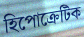
হিপোক্রেটিক